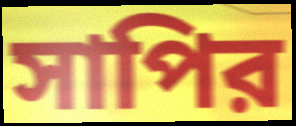
সাপির